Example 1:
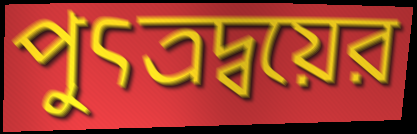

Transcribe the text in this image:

পুৎত্রদ্বয়ের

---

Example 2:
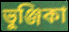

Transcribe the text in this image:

ভুঞ্জিকা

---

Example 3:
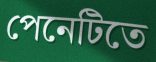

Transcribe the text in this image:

পেনেটিতে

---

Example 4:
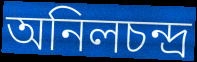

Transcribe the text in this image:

অনিলচন্দ্র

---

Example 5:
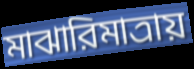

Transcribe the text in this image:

মাঝারিমাত্রায়